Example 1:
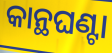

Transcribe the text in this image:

କାନ୍ଥଘଣ୍ଟା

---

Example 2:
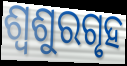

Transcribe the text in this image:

ଶ୍ୱଶୁରଗୃହ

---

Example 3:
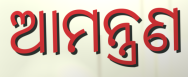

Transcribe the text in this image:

ଆମନ୍ତ୍ରଣ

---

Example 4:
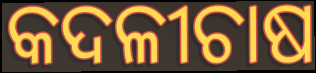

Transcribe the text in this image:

କଦଳୀଚାଷ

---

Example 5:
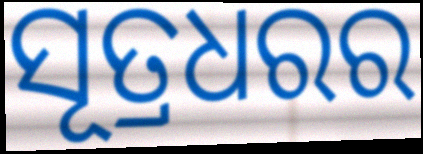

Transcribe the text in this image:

ସୂତ୍ରଧରର